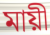
মায়ী